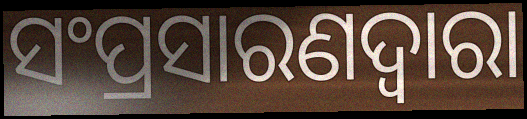
ସଂପ୍ରସାରଣଦ୍ଵାରା